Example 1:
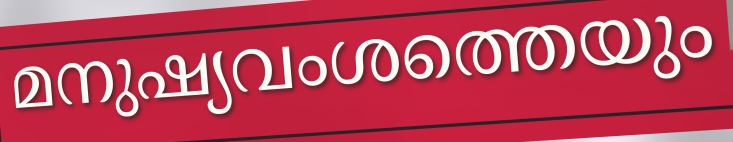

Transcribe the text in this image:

മനുഷ്യവംശത്തെയും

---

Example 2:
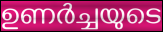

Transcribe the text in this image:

ഉണർച്ചയുടെ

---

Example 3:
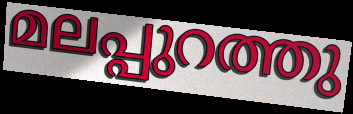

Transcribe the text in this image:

മലപ്പുറത്തു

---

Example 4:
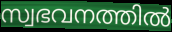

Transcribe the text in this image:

സ്വഭവനത്തിൽ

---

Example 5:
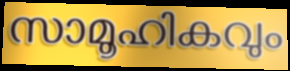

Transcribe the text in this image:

സാമൂഹികവും